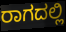
ರಾಗದಲ್ಲಿ